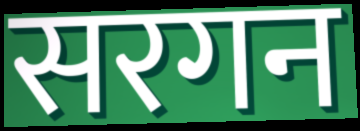
सरगन